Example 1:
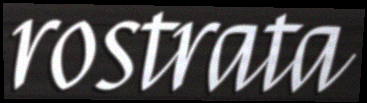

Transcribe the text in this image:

rostrata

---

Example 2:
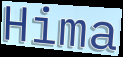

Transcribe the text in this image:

Hima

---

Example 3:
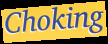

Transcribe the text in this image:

Choking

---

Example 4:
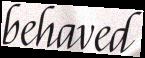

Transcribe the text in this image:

behaved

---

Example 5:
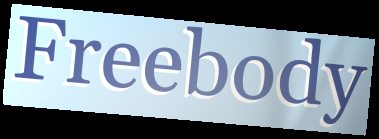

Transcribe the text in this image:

Freebody